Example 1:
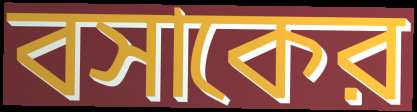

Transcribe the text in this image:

বসাকের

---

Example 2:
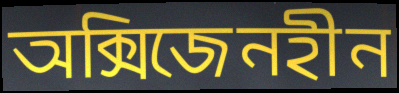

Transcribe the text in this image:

অক্সিজেনহীন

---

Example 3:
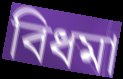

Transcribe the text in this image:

বিধমা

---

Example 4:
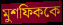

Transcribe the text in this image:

মুশফিককে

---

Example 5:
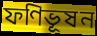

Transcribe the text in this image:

ফণিভূষন